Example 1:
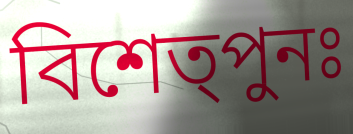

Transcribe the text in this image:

বিশেত্পুনঃ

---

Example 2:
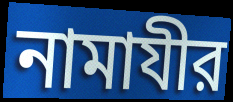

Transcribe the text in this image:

নামাযীর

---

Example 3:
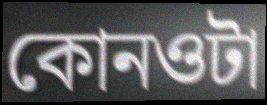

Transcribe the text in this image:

কোনওটা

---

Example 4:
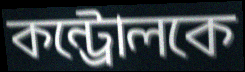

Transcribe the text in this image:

কন্ট্রোলকে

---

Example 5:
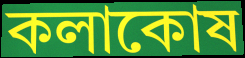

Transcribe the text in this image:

কলাকোষ